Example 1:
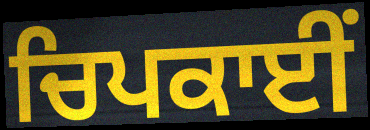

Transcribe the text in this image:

ਚਿਪਕਾਈਂ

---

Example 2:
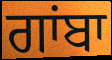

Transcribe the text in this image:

ਗਾਂਬਾ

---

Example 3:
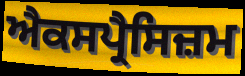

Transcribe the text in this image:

ਐਕਸਪ੍ਰੈਸਿਜ਼ਮ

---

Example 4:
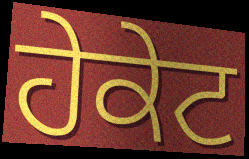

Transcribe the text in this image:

ਹੇਕੇਟ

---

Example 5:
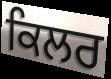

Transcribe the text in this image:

ਕਿਲਰ